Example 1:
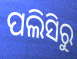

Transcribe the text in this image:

ପଲିସିରୁ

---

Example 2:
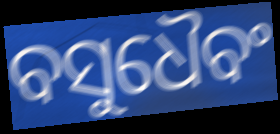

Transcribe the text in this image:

ବସୁଧୈବଂ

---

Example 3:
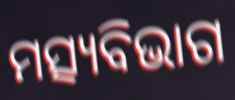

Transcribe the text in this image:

ମତ୍ସ୍ୟବିଭାଗ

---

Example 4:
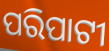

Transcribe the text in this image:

ପରିପାଟୀ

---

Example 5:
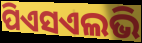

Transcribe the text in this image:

ପିଏସଏଲଭି